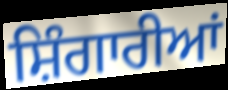
ਸ਼ਿੰਗਾਰੀਆਂ